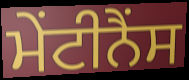
ਮੇਂਟੀਨੈਂਸ